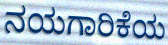
ನಯಗಾರಿಕೆಯ